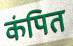
कंपित